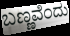
ಬಣ್ಣವೆಂದು